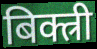
बिक्त्री